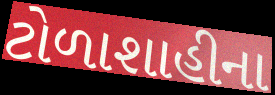
ટોળાશાહીના